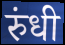
रुंधी